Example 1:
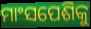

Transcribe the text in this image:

ମାଂସପେଶିକୁ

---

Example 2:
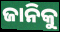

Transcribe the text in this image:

ଜାନିକୁ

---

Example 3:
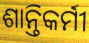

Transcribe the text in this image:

ଶାନ୍ତିକର୍ମୀ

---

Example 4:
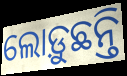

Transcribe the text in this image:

ଲୋଡ଼ୁଛନ୍ତି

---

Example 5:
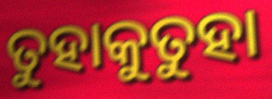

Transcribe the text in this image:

ତୁହାକୁତୁହା